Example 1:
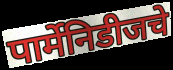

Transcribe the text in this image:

पार्मेनिडीजचे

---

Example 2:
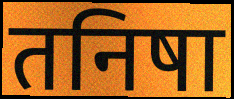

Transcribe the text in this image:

तनिषा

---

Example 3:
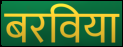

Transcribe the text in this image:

बरविया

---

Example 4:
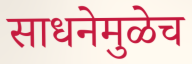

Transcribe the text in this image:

साधनेमुळेच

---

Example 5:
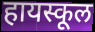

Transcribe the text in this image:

हायस्कूल